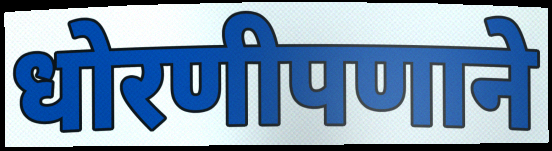
धोरणीपणाने